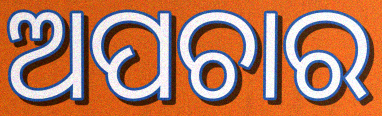
ଅପଚାର